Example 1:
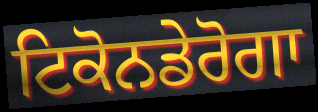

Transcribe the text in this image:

ਟਿਕੋਨਡੇਰੋਗਾ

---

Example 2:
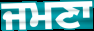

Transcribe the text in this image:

ਜਮਣਾ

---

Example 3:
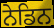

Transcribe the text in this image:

ਨੇਡਿਨ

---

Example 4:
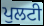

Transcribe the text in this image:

ਪੁਲਟੀ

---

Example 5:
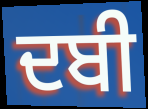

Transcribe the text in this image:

ਦਬੀ